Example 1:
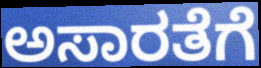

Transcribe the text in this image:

ಅಸಾರತೆಗೆ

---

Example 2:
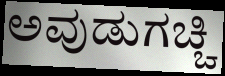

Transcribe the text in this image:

ಅವುಡುಗಚ್ಚಿ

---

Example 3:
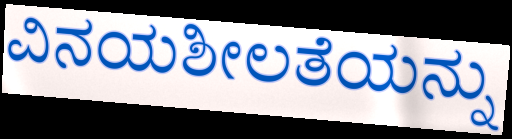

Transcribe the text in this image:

ವಿನಯಶೀಲತೆಯನ್ನು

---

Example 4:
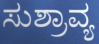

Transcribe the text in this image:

ಸುಶ್ರಾವ್ಯ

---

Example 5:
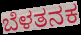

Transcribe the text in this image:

ಬೆಳತನಕ